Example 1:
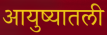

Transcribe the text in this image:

आयुष्यातली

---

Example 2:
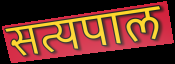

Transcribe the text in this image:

सत्यपाल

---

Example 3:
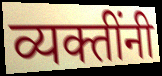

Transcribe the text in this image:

व्यक्तींनी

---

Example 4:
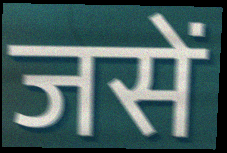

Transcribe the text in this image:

जसें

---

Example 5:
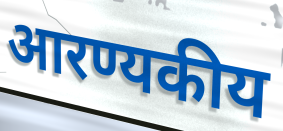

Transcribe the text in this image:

आरण्यकीय